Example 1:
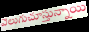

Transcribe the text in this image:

వెలుగుచూస్తున్నాయి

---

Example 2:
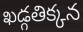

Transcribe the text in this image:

ఖడ్గతిక్కన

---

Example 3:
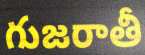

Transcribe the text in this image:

గుజరాతీ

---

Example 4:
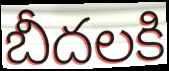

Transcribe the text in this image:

బీదలకి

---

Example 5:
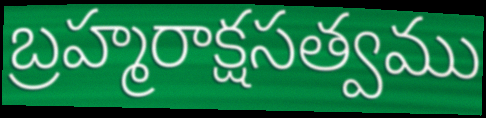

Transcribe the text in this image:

బ్రహ్మరాక్షసత్వము